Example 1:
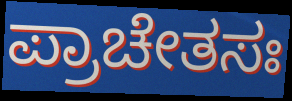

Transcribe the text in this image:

ಪ್ರಾಚೇತಸಃ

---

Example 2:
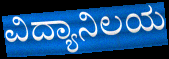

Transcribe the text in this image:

ವಿದ್ಯಾನಿಲಯ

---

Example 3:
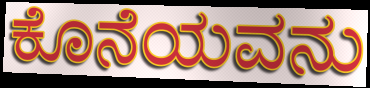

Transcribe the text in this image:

ಕೊನೆಯವನು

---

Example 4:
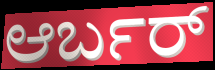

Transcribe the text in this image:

ಆರ್ಬರ್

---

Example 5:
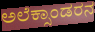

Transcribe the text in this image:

ಅಲೆಕ್ಸಾಂಡರನ